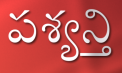
పశ్యన్తి